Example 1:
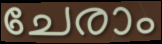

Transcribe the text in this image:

ചേരാം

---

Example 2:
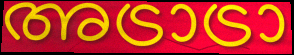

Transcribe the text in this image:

അട്രാട്രാ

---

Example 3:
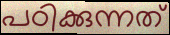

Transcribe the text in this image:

പഠിക്കുന്നത്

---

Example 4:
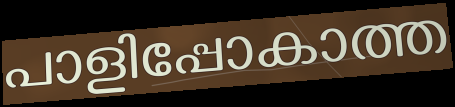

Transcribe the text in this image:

പാളിപ്പോകാത്ത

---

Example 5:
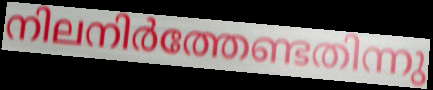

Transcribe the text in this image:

നിലനിർത്തേണ്ടതിന്നു